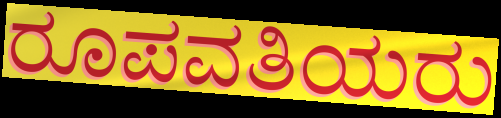
ರೂಪವತಿಯರು